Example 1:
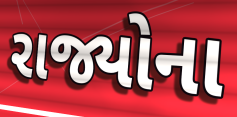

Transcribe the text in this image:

રાજ્યોના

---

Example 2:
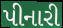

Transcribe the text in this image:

પીનારી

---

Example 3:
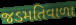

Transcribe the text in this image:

જડમતિવાળા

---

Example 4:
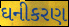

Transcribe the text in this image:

ઘનીકરણ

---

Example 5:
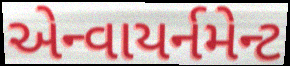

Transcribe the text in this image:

એન્વાયર્નમેન્ટ